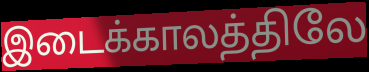
இடைக்காலத்திலே